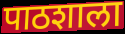
पाठशाला